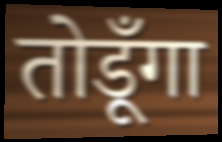
तोडूँगा